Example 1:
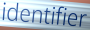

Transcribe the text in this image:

identifier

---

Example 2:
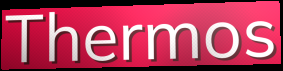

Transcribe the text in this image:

Thermos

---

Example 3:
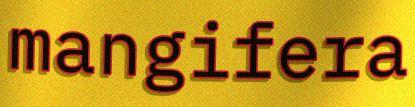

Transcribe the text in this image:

mangifera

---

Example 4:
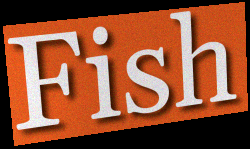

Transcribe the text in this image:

Fish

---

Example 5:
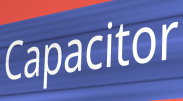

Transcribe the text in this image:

Capacitor